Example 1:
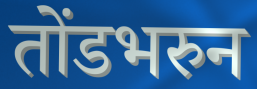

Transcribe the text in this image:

तोंडभरुन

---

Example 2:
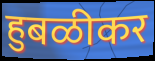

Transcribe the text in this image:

हुबळीकर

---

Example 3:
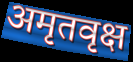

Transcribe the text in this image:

अमृतवृक्ष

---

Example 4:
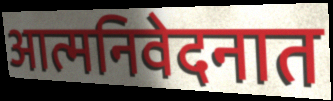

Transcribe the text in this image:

आत्मनिवेदनात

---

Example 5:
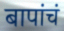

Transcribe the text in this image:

बापांचं